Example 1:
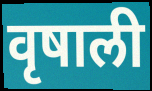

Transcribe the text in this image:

वृषाली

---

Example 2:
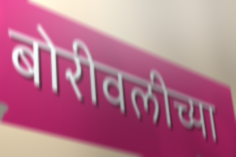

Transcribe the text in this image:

बोरीवलीच्या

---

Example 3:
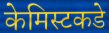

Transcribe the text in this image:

केमिस्टकडे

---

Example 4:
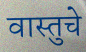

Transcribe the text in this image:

वास्तुचे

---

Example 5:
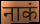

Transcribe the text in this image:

नाकं